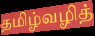
தமிழ்வழித்